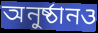
অনুষ্ঠানও